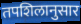
तपशिलानुसार